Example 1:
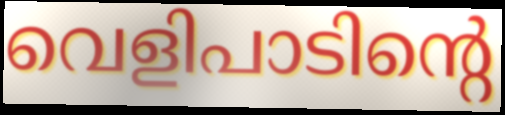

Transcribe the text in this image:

വെളിപാടിന്റെ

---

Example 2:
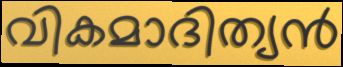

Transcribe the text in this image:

വികമാദിത്യൻ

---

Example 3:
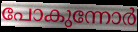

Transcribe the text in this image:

പോകുന്നോർ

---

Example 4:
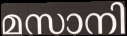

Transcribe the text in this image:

മസാനി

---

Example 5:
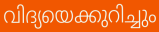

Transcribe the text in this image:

വിദ്യയെക്കുറിച്ചും